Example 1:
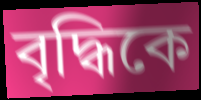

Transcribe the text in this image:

বৃদ্ধিকে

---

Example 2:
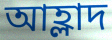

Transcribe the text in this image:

আহ্লাদ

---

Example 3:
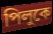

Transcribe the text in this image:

পিলুকে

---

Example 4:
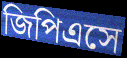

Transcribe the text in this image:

জিপিএসে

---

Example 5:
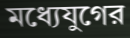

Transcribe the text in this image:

মধ্যেযুগের